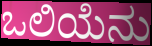
ಒಲಿಯೆನು